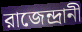
রাজেন্দ্রানী